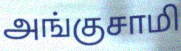
அங்குசாமி